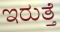
ಇರುತ್ತೆ